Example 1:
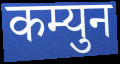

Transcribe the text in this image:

कम्युन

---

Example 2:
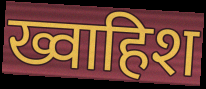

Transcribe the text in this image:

ख्वाहिश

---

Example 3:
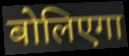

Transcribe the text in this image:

बोलिएगा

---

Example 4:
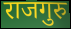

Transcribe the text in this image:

राजगुरु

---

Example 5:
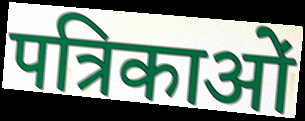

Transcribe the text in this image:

पत्रिकाओं